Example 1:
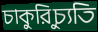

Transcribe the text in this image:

চাকুরিচ্যুতি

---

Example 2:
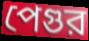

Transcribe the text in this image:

পেগুর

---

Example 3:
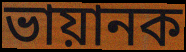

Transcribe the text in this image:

ভায়ানক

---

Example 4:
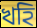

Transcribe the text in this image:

খহি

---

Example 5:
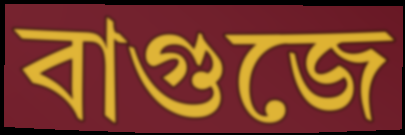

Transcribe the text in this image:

বাগুজে